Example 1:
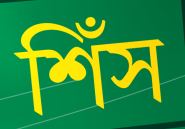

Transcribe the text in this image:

শিঁস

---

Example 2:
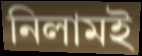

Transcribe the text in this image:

নিলামই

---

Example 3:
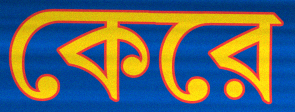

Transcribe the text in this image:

কেরে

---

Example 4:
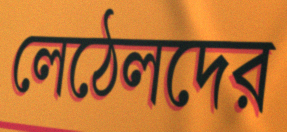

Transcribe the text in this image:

লেঠেলদের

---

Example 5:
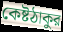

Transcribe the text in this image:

কেষ্টঠাকুর